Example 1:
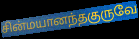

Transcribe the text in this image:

சின்மயானந்தகுருவே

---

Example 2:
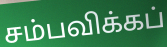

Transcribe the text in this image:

சம்பவிக்கப்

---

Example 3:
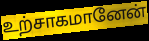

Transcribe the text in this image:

உற்சாகமானேன்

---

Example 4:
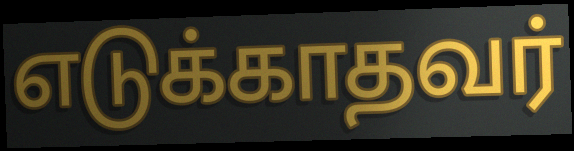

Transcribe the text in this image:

எடுக்காதவர்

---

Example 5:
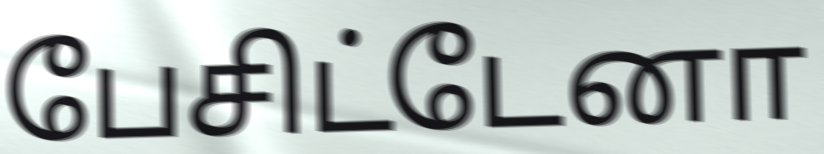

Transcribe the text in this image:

பேசிட்டேனா